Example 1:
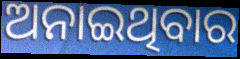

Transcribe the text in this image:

ଅନାଇଥିବାର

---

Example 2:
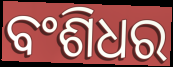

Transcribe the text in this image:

ବଂଶିଧର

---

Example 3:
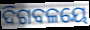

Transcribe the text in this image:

ଦିଗବଳୟେ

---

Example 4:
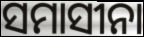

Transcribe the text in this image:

ସମାସୀନା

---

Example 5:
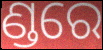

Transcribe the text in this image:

ଣ୍ଡରେ